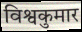
विश्वकुमार